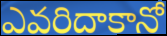
ఎవరిదాకానో